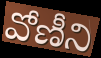
వోణీని